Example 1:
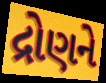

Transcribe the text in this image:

દ્રોણને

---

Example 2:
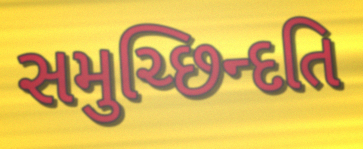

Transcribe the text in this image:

સમુચ્છિન્દતિ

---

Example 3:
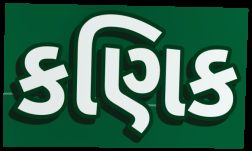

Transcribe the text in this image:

કણિક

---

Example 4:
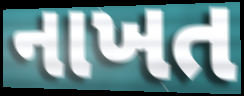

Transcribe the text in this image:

નાખત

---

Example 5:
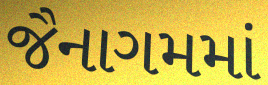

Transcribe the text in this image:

જૈનાગમમાં